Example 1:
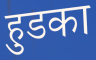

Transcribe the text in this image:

हुडका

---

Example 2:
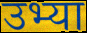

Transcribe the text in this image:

उभ्या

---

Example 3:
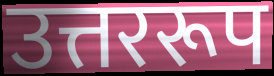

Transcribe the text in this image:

उत्तररूप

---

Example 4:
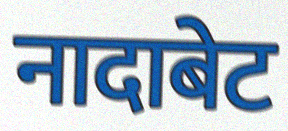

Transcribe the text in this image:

नादाबेट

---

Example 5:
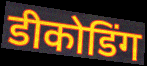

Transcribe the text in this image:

डीकोडिंग